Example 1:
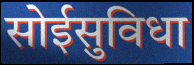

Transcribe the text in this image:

सोईसुविधा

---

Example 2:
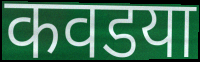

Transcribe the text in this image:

कवडया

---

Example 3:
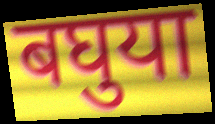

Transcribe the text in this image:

बघुया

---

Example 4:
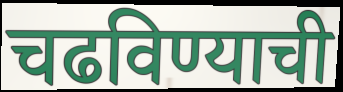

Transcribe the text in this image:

चढविण्याची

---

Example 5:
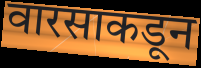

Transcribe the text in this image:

वारसाकडून